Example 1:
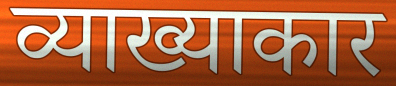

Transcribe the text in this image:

व्याख्याकार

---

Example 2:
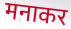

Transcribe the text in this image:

मनाकर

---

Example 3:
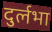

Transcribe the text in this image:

दुर्लभा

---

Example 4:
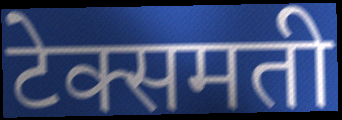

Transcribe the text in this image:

टेक्समती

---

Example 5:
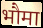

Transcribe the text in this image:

भौमा